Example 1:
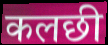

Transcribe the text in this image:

कलछी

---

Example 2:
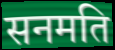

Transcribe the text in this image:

सनमति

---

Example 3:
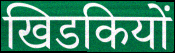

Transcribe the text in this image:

खिडकियों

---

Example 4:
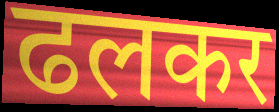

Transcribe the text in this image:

ढलकर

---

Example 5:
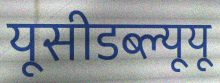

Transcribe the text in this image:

यूसीडब्ल्यूयू